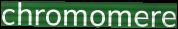
chromomere